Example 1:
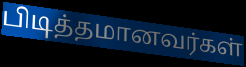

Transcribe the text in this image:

பிடித்தமானவர்கள்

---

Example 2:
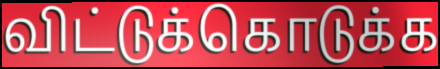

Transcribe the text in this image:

விட்டுக்கொடுக்க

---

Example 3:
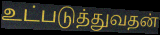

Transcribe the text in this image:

உட்படுத்துவதன்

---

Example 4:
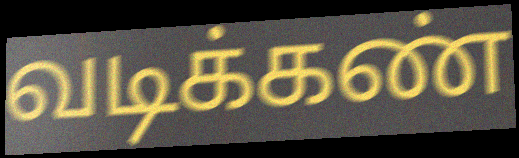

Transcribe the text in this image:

வடிக்கண்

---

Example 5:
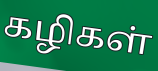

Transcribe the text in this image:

கழிகள்